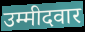
उम्मीदवार